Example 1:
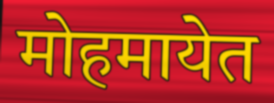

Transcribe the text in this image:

मोहमायेत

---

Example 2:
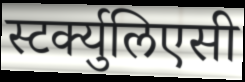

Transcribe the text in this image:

स्टर्क्युलिएसी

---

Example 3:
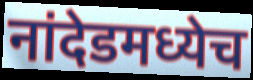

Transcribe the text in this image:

नांदेडमध्येच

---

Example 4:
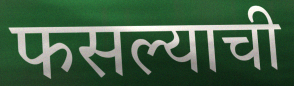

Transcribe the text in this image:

फसल्याची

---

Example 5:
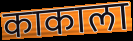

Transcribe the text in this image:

काकाला